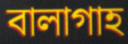
বালাগাহ